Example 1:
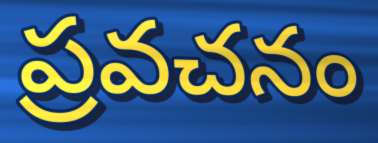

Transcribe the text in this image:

ప్రవచనం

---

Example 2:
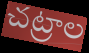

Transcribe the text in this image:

చట్రాల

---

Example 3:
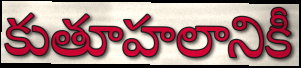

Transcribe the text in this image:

కుతూహలానికీ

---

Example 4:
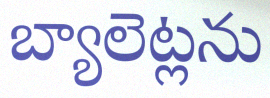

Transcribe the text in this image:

బ్యాలెట్లను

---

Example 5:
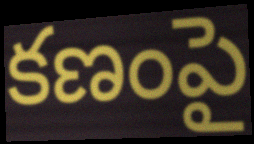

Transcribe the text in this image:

కణంపై